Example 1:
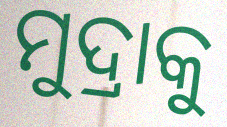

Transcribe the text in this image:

ମୁଦ୍ରାକୁ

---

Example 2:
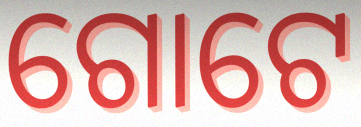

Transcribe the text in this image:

ଗୋଟେ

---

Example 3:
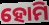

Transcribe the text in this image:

ହୋମି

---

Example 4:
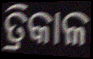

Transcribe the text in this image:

ତ୍ରିକାଳ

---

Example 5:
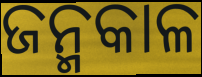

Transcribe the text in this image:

ଜନ୍ମକାଳ